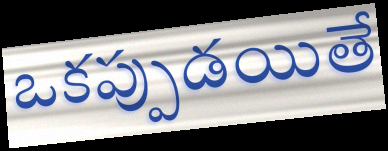
ఒకప్పుడయితే